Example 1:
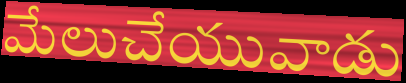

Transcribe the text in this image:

మేలుచేయువాడు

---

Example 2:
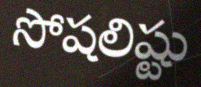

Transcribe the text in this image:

సోషలిష్టు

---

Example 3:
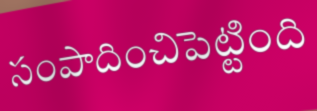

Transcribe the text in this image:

సంపాదించిపెట్టింది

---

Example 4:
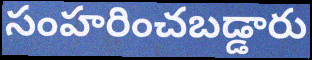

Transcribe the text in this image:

సంహరించబడ్డారు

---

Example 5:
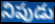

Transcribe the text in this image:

నిపుడు